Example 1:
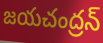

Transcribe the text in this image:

జయచంద్రన్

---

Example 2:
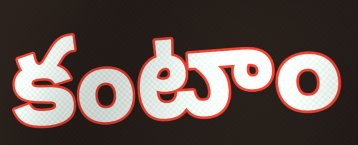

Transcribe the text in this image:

కంటాం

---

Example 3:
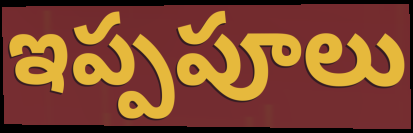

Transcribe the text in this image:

ఇప్పపూలు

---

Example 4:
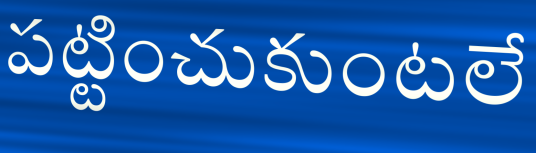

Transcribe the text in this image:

పట్టించుకుంటలే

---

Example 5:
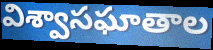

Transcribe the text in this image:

విశ్వాసఘాతాల